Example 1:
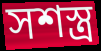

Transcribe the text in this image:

সশস্ত্র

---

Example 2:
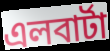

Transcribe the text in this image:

এলবার্টা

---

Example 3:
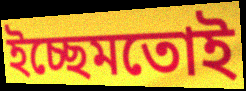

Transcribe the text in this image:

ইচ্ছেমতোই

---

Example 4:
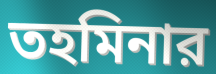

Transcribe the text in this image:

তহমিনার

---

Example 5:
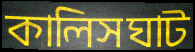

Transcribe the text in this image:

কালিসঘাট